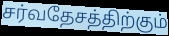
சர்வதேசத்திற்கும்